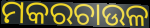
ମକରଚାଉଳ